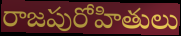
రాజపురోహితులు